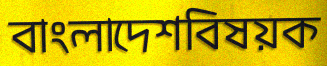
বাংলাদেশবিষয়ক